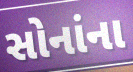
સોનાંના